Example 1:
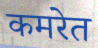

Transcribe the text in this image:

कमरेत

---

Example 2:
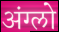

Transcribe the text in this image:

अंग्लो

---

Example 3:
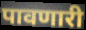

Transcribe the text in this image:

पावणारी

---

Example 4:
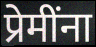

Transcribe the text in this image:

प्रेमींना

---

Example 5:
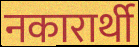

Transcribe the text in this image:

नकारार्थी